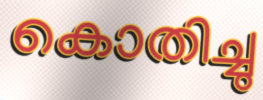
കൊതിച്ചു